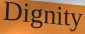
Dignity